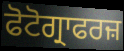
ਫੋਟੋਗ੍ਰਾਫਰਜ਼